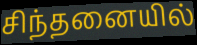
சிந்தனையில்